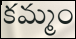
కమ్మం